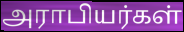
அராபியர்கள்